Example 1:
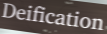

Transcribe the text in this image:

Deification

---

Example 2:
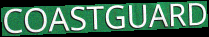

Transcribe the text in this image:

COASTGUARD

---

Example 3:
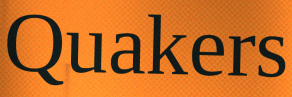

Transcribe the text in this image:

Quakers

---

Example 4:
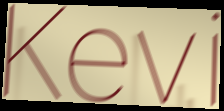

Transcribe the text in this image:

Kevi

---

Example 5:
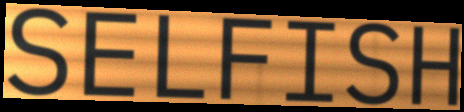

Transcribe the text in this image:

SELFISH